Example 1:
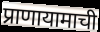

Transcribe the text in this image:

प्राणायामाची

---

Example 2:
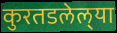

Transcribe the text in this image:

कुरतडलेल्या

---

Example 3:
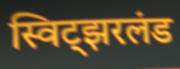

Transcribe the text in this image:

स्विट्झरलंड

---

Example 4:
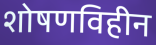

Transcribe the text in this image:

शोषणविहीन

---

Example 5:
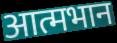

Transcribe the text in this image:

आत्मभान